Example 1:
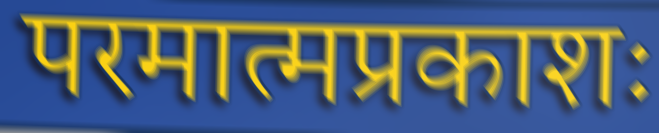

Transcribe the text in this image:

परमात्मप्रकाशः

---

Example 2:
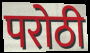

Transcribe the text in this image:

परोठी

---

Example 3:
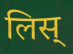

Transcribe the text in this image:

लिस्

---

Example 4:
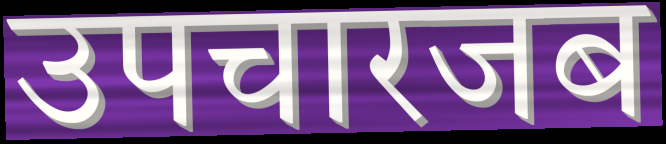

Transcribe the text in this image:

उपचारजब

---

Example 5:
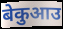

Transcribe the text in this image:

बेकुआउ